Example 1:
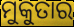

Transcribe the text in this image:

ମୁକୁତାର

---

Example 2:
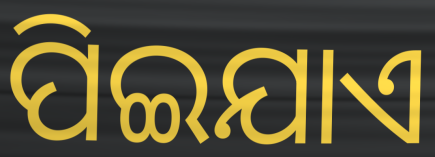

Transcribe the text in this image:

ପିଇଯାଏ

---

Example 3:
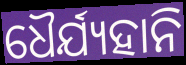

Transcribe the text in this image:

ଧୈର୍ଯ୍ୟହାନି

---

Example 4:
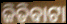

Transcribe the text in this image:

ଜିତିବାଟା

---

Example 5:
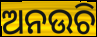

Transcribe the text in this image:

ଅନଉଚି